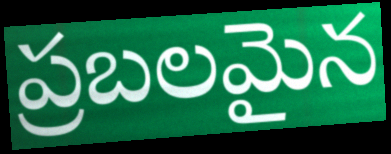
ప్రబలమైన